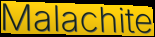
Malachite